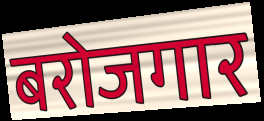
बरोजगार